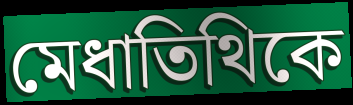
মেধাতিথিকে